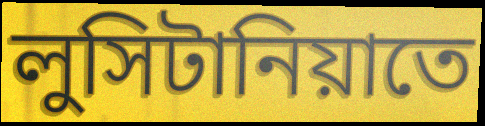
লুসিটানিয়াতে